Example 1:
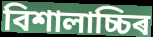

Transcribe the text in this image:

বিশালাচ্চিৰ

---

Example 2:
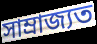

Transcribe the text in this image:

সাম্ৰাজ্যত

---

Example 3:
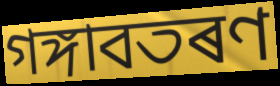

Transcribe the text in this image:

গঙ্গাবতৰণ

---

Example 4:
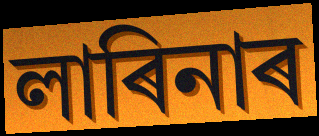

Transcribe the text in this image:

লাৰিনাৰ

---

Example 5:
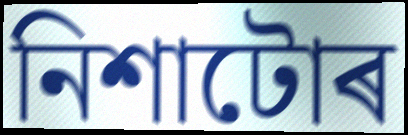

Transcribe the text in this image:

নিশাটোৰ